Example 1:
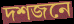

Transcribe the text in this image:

দশজনে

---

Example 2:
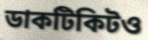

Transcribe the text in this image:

ডাকটিকিটও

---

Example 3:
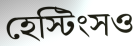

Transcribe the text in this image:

হেস্টিংসও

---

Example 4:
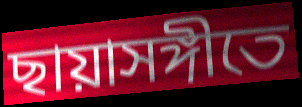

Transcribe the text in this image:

ছায়াসঙ্গীতে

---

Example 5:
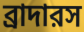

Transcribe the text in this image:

ব্রাদারস